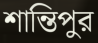
শান্তিপুর